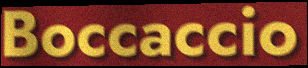
Boccaccio